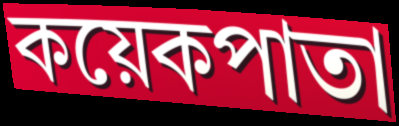
কয়েকপাতা